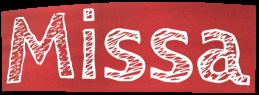
Missa